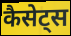
कैसेट्स